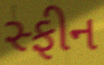
સ્ફીન